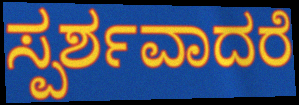
ಸ್ಪರ್ಶವಾದರೆ